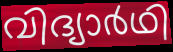
വിദ്യാർഥി